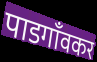
पाडगाँवकर